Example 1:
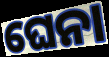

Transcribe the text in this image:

ଘେନା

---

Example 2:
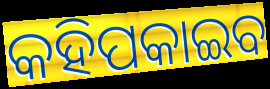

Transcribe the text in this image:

କହିପକାଇବ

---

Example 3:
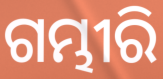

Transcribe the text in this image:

ଗମ୍ଭୀରି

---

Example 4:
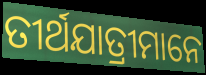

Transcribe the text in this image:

ତୀର୍ଥଯାତ୍ରୀମାନେ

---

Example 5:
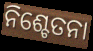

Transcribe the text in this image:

ନିଶ୍ଚେତନା